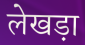
लेखड़ा